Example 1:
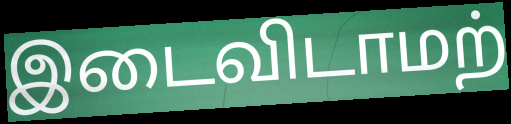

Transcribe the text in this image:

இடைவிடாமற்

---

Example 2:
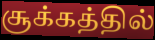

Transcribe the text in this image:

சூக்கத்தில்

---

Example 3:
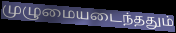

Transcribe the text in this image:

முழுமையடைந்ததும்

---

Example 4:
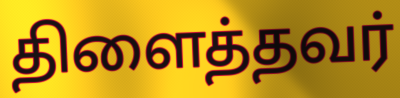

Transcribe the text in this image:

திளைத்தவர்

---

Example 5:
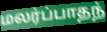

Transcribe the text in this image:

மலர்ப்பாதந்